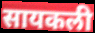
सायकली